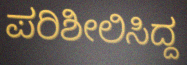
ಪರಿಶೀಲಿಸಿದ್ದ